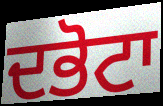
ਦਭੋਟਾ